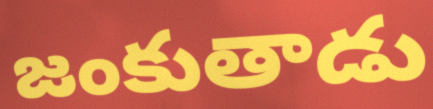
జంకుతాడు